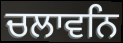
ਚਲਾਵਨਿ